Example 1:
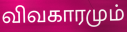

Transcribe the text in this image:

விவகாரமும்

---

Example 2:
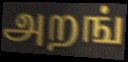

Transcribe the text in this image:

அறங்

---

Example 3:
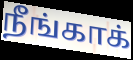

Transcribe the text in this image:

நீங்காக்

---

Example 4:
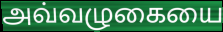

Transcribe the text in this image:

அவ்வழுகையை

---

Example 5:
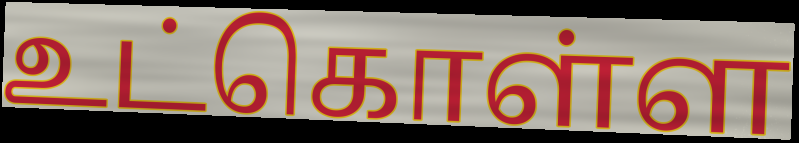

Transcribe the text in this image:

உட்கொள்ள